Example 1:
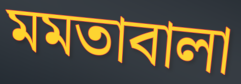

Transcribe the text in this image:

মমতাবালা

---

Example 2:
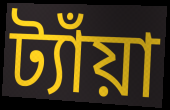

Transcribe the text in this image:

ট্যাঁয়া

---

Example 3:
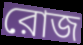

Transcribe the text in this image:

রোজ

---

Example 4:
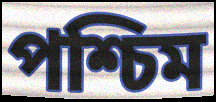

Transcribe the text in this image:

পশ্চিম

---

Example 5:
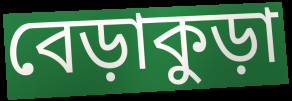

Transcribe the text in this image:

বেড়াকুড়া